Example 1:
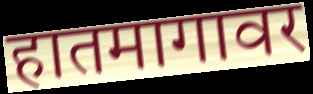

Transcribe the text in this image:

हातमागावर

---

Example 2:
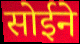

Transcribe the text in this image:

सोईने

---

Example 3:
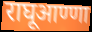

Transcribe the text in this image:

राघूआण्णा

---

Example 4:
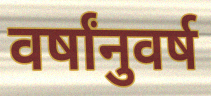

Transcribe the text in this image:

वर्षांनुवर्ष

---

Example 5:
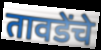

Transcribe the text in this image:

तावडेंचे